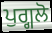
ਪੁਗ੍ਗਲੋ